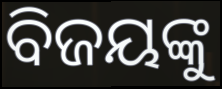
ବିଜୟଙ୍କୁ